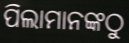
ପିଲାମାନଙ୍କଠୁ